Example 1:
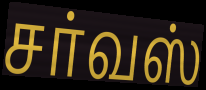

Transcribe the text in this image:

சர்வஸ்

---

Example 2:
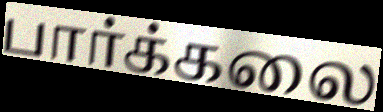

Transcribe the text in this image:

பார்க்கலை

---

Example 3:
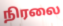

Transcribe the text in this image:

நிரலை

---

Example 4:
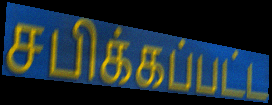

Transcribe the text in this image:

சபிக்கப்பட்ட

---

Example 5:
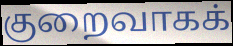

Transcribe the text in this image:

குறைவாகக்